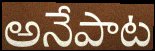
అనేపాట